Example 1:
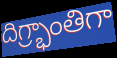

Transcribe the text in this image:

దిగ్ర్భాంతిగా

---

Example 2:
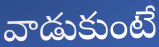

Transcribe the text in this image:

వాడుకుంటే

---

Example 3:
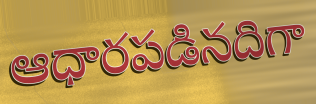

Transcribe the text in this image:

ఆధారపడినదిగా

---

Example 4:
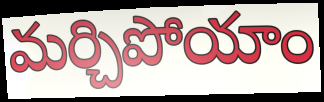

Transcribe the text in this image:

మర్చిపోయాం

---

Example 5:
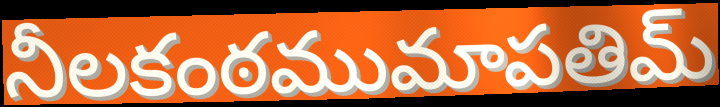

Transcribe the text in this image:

నీలకంఠముమాపతిమ్